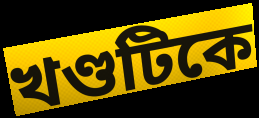
খণ্ডটিকে